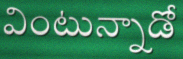
వింటున్నాడో